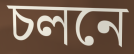
চলনে